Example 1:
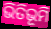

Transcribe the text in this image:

ଭିତିଭୂମି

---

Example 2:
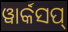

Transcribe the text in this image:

ୱାର୍କସପ୍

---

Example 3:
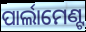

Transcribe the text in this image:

ପାର୍ଲାମେଣ୍ଟ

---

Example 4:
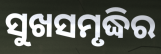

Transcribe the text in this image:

ସୁଖସମୃଦ୍ଧିର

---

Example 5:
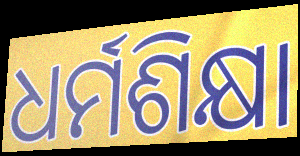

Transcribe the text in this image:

ଧର୍ମଶିକ୍ଷା